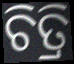
ଚିତ୍ରି